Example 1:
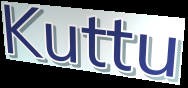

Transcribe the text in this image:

Kuttu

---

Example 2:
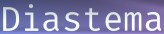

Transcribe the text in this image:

Diastema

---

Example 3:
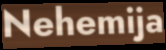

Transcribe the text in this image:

Nehemija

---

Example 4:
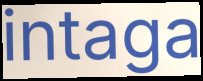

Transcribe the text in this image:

intaga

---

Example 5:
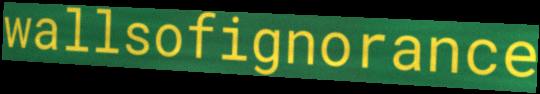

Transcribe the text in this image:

wallsofignorance